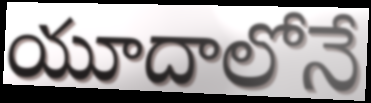
యూదాలోనే